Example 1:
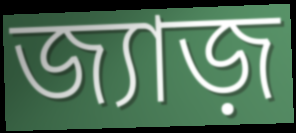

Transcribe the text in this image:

জ্যাজ়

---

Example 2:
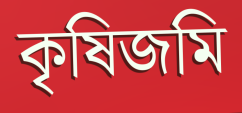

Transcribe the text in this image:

কৃষিজমি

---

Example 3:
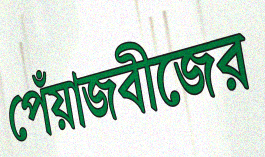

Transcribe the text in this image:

পেঁয়াজবীজের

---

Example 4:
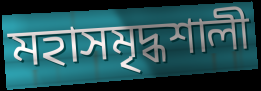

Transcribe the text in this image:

মহাসমৃদ্ধশালী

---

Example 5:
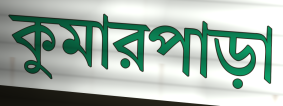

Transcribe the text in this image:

কুমারপাড়া